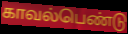
காவல்பெண்டு